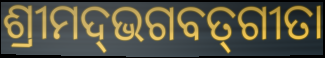
ଶ୍ରୀମଦ୍‌ଭଗବତ୍‌ଗୀତା